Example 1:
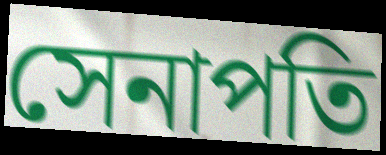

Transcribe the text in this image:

সেনাপতি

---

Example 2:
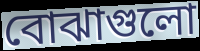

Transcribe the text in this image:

বোঝাগুলো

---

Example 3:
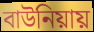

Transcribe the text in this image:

বাউনিয়ায়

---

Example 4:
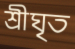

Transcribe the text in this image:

শ্রীঘৃত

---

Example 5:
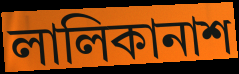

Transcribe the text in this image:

লালিকানাশ